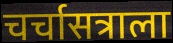
चर्चासत्राला